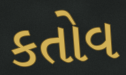
કતોવ